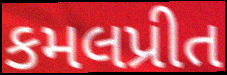
કમલપ્રીત